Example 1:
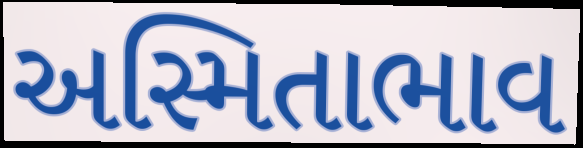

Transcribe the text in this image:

અસ્મિતાભાવ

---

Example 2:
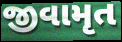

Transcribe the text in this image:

જીવામૃત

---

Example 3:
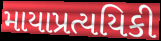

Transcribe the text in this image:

માયાપ્રત્યયિકી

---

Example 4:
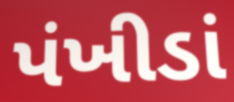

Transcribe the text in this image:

પંખીડાં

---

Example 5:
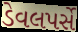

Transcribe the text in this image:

ડેવલપર્સે